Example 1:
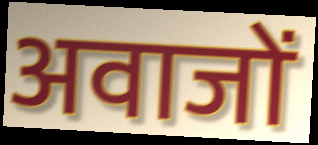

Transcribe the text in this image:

अवाजों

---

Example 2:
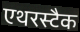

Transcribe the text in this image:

एथरस्टैक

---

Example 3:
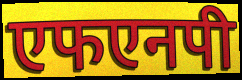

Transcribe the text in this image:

एफएनपी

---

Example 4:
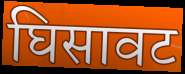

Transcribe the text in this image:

घिसावट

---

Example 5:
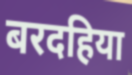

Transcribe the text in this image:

बरदहिया